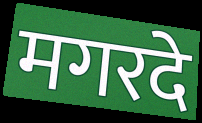
मगरदे